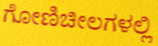
ಗೋಣಿಚೀಲಗಳಲ್ಲಿ